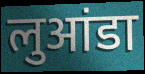
लुआंडा